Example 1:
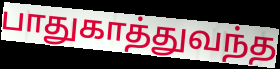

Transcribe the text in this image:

பாதுகாத்துவந்த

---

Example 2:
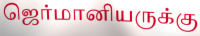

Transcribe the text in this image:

ஜெர்மானியருக்கு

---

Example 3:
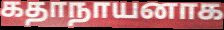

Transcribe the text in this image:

கதாநாயனாக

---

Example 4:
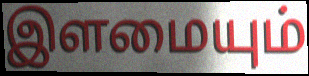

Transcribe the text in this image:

இளமையும்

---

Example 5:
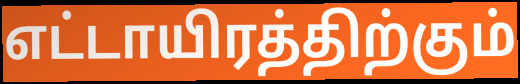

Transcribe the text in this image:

எட்டாயிரத்திற்கும்